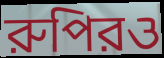
রুপিরও